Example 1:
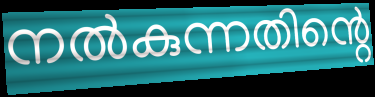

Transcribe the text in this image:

നൽകുന്നതിന്റെ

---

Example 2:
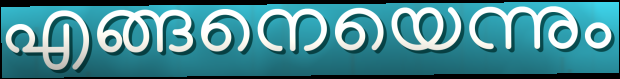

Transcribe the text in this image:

എങ്ങനെയെന്നും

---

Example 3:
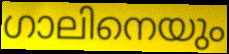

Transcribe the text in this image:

ഗാലിനെയും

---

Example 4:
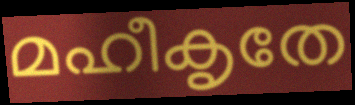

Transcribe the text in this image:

മഹീകൃതേ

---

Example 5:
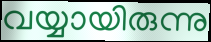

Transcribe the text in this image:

വയ്യായിരുന്നു